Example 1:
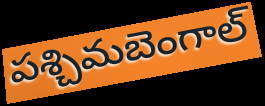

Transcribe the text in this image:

పశ్చిమబెంగాల్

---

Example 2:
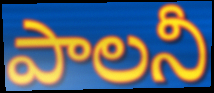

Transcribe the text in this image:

పాలనీ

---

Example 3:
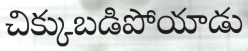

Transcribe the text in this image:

చిక్కుబడిపోయాడు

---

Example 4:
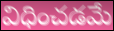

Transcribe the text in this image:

విధించడమే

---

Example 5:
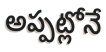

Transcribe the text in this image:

అప్పట్లోనే